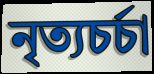
নৃত্যচর্চা